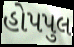
હોપપુલ